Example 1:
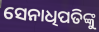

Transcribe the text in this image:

ସେନାଧିପତିଙ୍କୁ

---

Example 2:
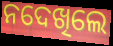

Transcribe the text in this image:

ନଦେଖିଲେ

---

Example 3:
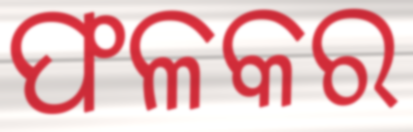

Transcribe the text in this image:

ଫଳକର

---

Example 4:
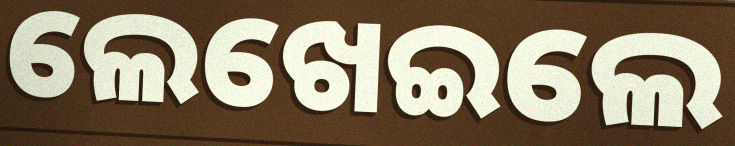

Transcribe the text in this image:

ଲେଖେଇଲେ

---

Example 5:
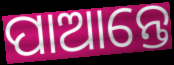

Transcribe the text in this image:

ପାଆନ୍ତେ